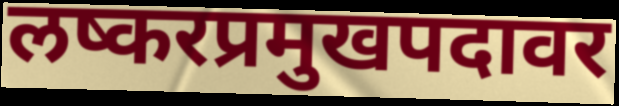
लष्करप्रमुखपदावर